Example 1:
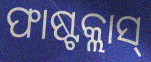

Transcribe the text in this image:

ଫାଷ୍ଟକ୍ଲାସ୍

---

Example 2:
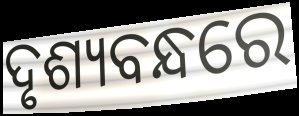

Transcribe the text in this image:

ଦୃଶ୍ୟବନ୍ଧରେ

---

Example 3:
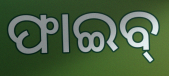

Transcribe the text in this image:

ଫାଇବ୍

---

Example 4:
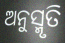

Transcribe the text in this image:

ଅନୁସ୍ମୃତି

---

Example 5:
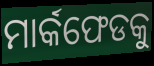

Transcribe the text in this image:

ମାର୍କଫେଡକୁ